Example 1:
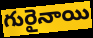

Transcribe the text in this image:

గురైనాయి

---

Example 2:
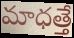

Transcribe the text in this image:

మాధత్తే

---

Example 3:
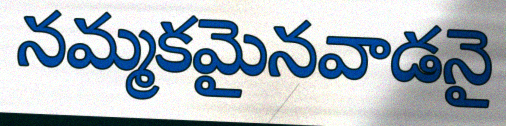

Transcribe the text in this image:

నమ్మకమైనవాడనై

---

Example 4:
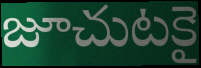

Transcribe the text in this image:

జూచుటకై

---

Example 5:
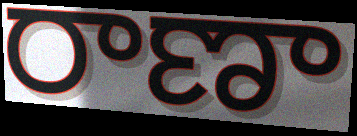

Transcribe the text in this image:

రాణా